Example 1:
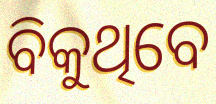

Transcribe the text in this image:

ବିକୁଥିବେ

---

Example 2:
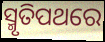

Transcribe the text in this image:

ସ୍ମୃତିପଥରେ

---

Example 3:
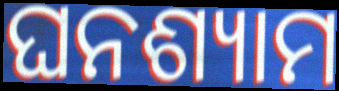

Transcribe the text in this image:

ଘନଶ୍ୟାମ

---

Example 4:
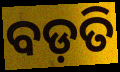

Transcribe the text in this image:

ବଡ଼ତି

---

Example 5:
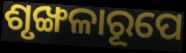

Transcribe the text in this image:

ଶୃଙ୍ଖଳାରୂପେ